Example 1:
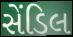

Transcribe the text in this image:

સેંડિલ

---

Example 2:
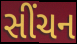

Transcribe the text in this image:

સીંચન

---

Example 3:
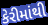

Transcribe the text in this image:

કેરીમાંથી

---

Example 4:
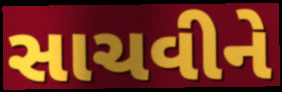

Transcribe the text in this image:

સાચવીને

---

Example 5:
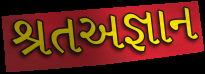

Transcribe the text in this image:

શ્રતઅજ્ઞાન